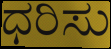
ಧರಿಸು